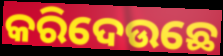
କରିଦେଉଛେ